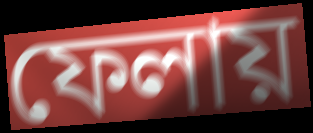
ফেলায়